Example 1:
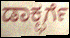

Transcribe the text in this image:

ಡಾಕ್ಟರ್ಗೆ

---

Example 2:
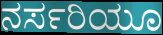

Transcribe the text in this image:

ನರ್ಸರಿಯೂ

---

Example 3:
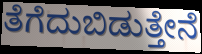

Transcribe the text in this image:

ತೆಗೆದುಬಿಡುತ್ತೇನೆ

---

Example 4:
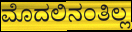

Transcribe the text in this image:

ಮೊದಲಿನಂತಿಲ್ಲ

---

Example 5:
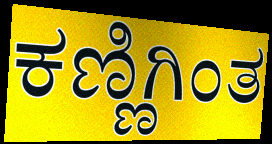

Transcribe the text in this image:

ಕಣ್ಣಿಗಿಂತ